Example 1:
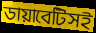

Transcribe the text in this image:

ডায়াবেটিসই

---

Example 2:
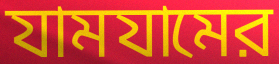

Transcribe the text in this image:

যামযামের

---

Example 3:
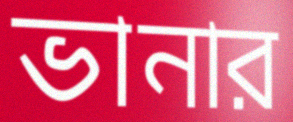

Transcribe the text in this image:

ভানার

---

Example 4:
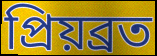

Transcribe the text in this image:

প্রিয়ব্রত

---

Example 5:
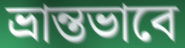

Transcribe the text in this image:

ভ্রান্তভাবে